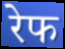
रेफ